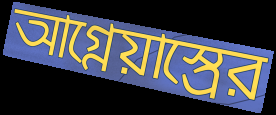
আগ্নেয়াস্ত্রের